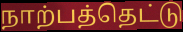
நாற்பத்தெட்டு